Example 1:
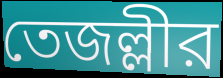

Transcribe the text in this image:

তেজল্লীর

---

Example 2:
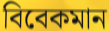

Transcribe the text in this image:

বিবেকমান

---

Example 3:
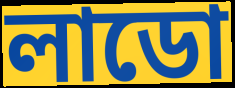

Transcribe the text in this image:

লাডো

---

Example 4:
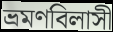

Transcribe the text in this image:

ভ্রমণবিলাসী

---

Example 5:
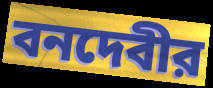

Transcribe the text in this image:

বনদেবীর